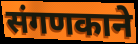
संगणकाने